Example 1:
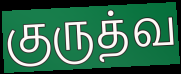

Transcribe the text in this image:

குருத்வ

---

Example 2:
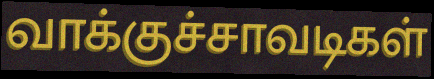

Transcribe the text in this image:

வாக்குச்சாவடிகள்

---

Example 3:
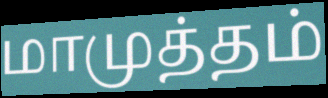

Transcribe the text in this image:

மாமுத்தம்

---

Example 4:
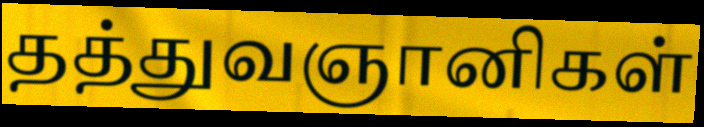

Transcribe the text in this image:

தத்துவஞானிகள்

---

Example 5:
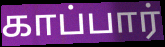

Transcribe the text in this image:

காப்பார்